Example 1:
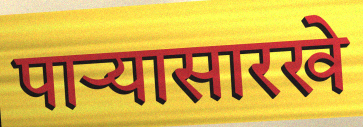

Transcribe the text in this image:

पाऱ्यासारखे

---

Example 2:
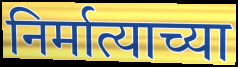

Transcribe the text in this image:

निर्मात्याच्या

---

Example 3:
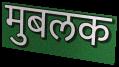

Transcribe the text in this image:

मुबलक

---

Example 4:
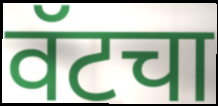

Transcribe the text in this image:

वॅटचा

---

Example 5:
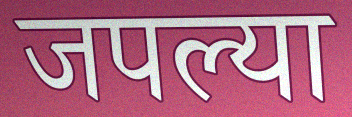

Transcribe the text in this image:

जपल्या